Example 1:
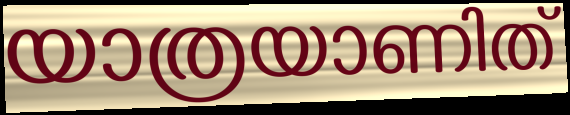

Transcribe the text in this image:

യാത്രയാണിത്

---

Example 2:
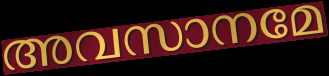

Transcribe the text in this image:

അവസാനമേ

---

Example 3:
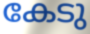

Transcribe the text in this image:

കേടു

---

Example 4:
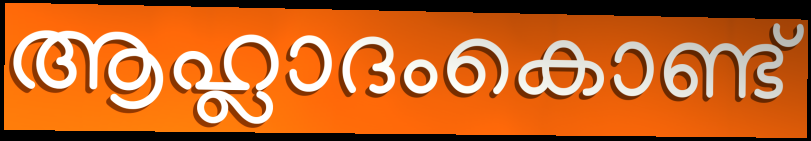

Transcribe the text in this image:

ആഹ്ലാദംകൊണ്ട്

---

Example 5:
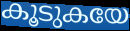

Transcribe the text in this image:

കൂടുകയേ